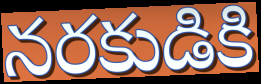
నరకుడికి